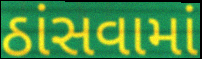
ઠાંસવામાં